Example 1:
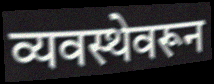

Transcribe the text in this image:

व्यवस्थेवरून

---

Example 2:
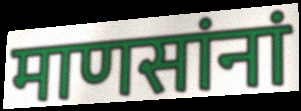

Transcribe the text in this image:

माणसांनां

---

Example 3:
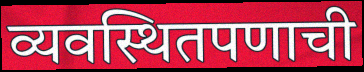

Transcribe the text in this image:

व्यवस्थितपणाची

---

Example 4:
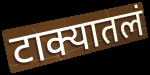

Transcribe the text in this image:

टाक्यातलं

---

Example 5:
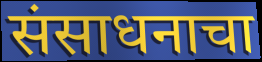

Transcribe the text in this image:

संसाधनाचा